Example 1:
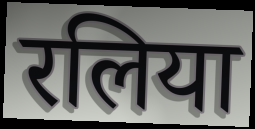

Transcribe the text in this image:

रलिया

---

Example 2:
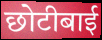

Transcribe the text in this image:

छोटीबाई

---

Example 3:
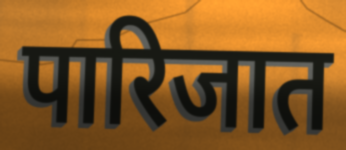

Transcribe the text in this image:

पारिजात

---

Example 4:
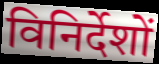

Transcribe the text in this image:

विनिर्देशों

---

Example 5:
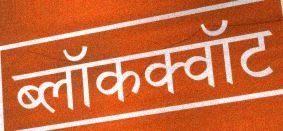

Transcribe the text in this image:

ब्लॉकक्वॉट